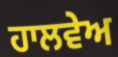
ਹਾਲਵੇਅ